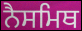
ਨੈਸਮਿਥ